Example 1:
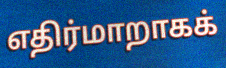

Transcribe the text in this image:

எதிர்மாறாகக்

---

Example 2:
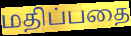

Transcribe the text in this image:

மதிப்பதை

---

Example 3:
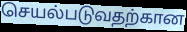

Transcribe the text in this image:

செயல்படுவதற்கான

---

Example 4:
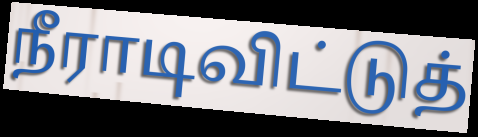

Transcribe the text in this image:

நீராடிவிட்டுத்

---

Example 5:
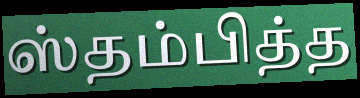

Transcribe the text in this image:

ஸ்தம்பித்த